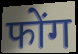
फोंग